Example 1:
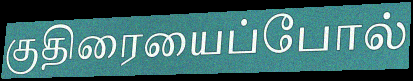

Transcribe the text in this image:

குதிரையைப்போல்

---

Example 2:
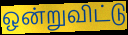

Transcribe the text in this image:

ஒன்றுவிட்டு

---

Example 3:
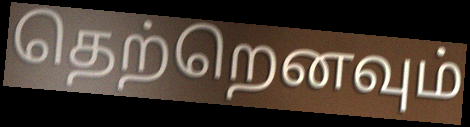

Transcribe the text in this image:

தெற்றெனவும்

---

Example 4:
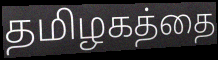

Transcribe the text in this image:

தமிழகத்தை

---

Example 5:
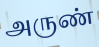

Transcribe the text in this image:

அருண்